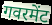
गवरमेंट